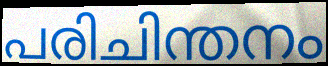
പരിചിന്തനം